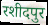
रशीदपुर